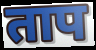
ताप